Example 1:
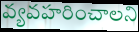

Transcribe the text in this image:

వ్యవహరించాలని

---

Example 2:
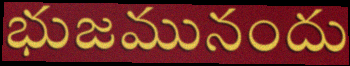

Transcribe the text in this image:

భుజమునందు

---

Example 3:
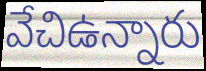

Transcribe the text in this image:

వేచిఉన్నారు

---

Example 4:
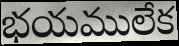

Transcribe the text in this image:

భయములేక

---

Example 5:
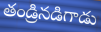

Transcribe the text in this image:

తండ్రినడిగాడు